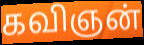
கவிஞன்